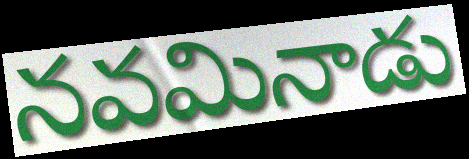
నవమినాడు